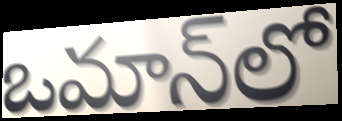
ఒమాన్‌లో